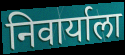
निवार्याला